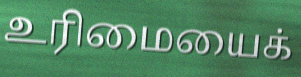
உரிமையைக்